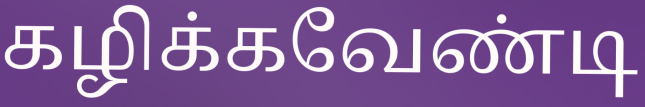
கழிக்கவேண்டி